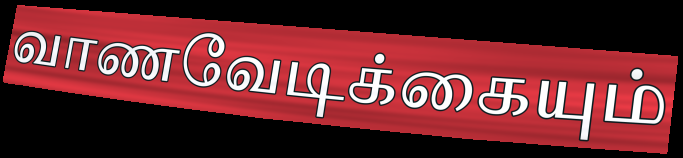
வாணவேடிக்கையும்